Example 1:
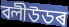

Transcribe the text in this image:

বলীউডৰ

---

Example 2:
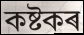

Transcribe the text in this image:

কষ্টকৰ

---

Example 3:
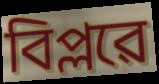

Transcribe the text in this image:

বিপ্লৱে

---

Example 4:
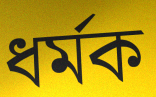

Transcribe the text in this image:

ধৰ্মক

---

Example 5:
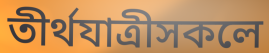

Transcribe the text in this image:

তীৰ্থযাত্ৰীসকলে